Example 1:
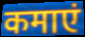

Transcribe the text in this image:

कमाएं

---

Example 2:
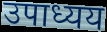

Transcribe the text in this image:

उपाध्यय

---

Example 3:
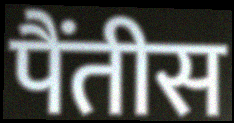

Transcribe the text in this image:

पैंतीस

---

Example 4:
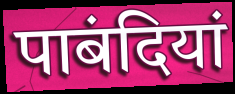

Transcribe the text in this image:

पाबंदियां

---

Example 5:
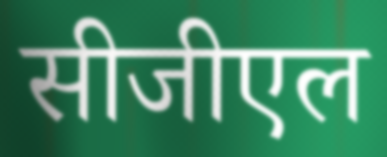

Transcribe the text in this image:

सीजीएल